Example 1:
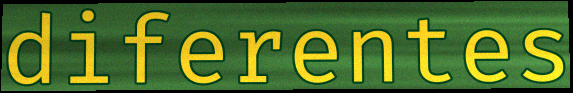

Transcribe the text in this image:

diferentes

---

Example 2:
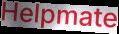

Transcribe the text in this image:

Helpmate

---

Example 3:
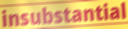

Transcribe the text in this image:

insubstantial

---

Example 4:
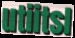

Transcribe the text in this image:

utiitsl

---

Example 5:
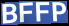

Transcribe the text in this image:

BFFP